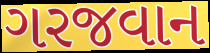
ગરજવાન